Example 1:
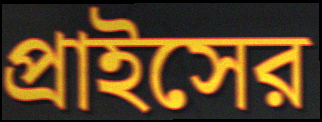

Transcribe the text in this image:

প্রাইসের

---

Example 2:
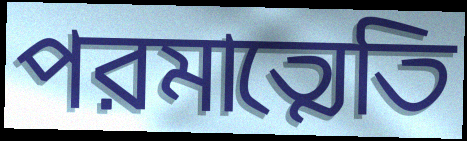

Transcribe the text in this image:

পরমাত্মেতি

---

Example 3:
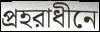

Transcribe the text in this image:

প্রহরাধীনে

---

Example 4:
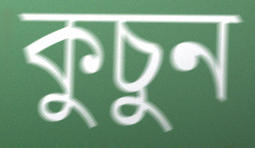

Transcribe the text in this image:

কুচুন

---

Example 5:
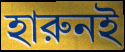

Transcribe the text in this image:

হারুনই